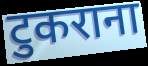
टुकराना